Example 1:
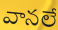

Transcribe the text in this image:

వానలే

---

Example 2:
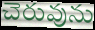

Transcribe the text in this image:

చెరువును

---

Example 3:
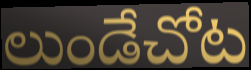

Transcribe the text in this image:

లుండేచోట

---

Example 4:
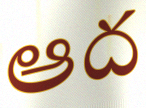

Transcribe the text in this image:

ఆద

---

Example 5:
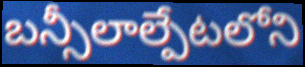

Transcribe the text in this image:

బన్సీలాల్పేటలోని